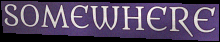
SOMEWHERE